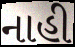
નાહી